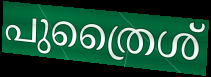
പുത്രൈശ്